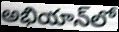
అభియాన్‌లో